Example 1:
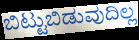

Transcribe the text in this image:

ಬಿಟ್ಟುಬಿಡುವುದಿಲ್ಲ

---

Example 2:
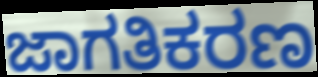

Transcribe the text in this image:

ಜಾಗತಿಕರಣ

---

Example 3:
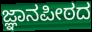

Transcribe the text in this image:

ಜ್ಞಾನಪೀಠದ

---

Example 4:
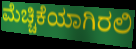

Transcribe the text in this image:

ಮೆಚ್ಚಿಕೆಯಾಗಿರಲಿ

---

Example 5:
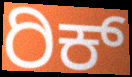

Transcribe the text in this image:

ರಿಕ್